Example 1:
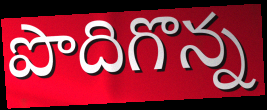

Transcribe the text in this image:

పొదిగొన్న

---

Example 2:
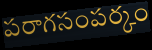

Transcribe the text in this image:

పరాగసంపర్కం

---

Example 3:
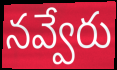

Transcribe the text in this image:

నవ్వేరు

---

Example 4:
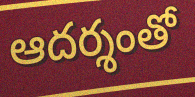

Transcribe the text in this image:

ఆదర్శంతో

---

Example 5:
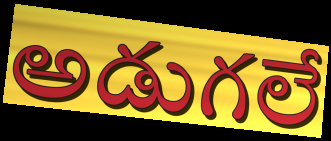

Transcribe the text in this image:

అడుగలే